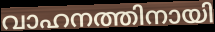
വാഹനത്തിനായി